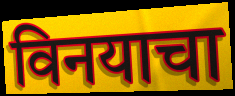
विनयाचा